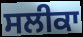
ਸਲੀਕਾ